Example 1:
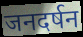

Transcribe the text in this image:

जनदर्षन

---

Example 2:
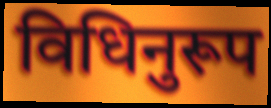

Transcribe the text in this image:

विधिनुरूप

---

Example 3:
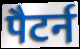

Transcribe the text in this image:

पैटर्न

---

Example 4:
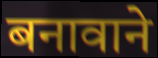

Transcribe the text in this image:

बनावाने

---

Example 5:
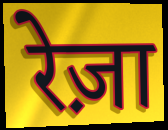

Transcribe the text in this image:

रेज़ा